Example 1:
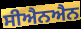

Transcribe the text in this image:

ਸੀਐਨਐਨ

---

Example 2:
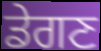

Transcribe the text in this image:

ਡੇਗਣ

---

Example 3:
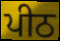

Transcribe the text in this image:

ਪੀਠ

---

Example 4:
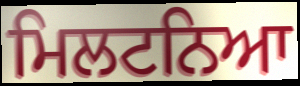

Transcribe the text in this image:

ਮਿਲਟਨਿਆ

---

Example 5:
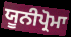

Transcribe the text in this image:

ਯੂਨੀਪ੍ਰੋਮਾ